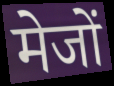
मेजों